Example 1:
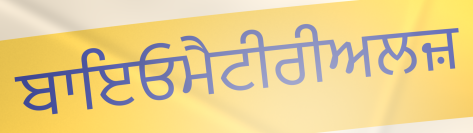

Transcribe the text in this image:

ਬਾਇਓਮੈਟੀਰੀਅਲਜ਼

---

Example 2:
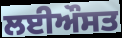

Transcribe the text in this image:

ਲਈਔਸਤ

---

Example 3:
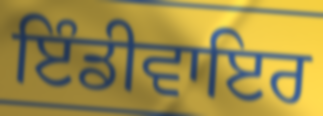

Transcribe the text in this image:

ਇੰਡੀਵਾਇਰ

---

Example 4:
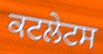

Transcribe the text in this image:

ਕਟਲੇਟਸ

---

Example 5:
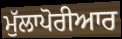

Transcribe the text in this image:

ਮੁੱਲਾਪੋਰੀਆਰ